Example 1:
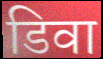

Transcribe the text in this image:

डिवा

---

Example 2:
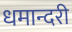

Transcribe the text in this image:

धमान्दरी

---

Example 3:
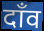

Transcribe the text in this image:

दाँव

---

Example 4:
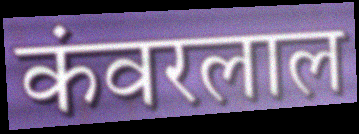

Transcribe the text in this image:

कंवरलाल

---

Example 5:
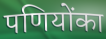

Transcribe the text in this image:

पणियोंका